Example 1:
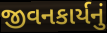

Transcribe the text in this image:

જીવનકાર્યનું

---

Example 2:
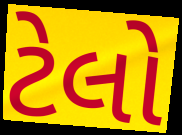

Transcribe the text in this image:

ટેલો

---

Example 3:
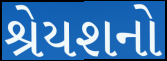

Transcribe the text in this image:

શ્રેયશનો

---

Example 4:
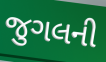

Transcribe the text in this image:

જુગલની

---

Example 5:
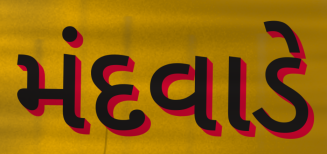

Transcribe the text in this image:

મંદવાડે